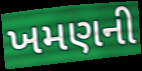
ખમણની